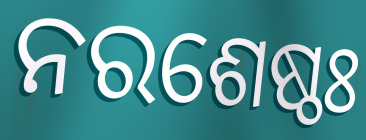
ନରଶେଷ୍ଠଃ